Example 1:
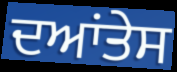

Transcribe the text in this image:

ਦਆਂਤੇਸ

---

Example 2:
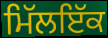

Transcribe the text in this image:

ਮਿੱਲਇੱਕ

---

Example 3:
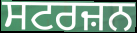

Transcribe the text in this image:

ਸਟਰਜ਼ਨ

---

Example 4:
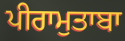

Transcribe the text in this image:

ਪੀਰਾਮੁਤਾਬਾ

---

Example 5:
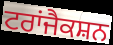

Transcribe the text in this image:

ਟਰਾਂਜੈਕਸ਼ਨ